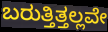
ಬರುತ್ತಿತ್ತಲ್ಲವೇ